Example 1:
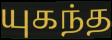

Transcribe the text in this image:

யுகந்த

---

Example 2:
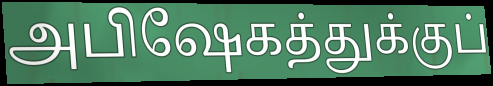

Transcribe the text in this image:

அபிஷேகத்துக்குப்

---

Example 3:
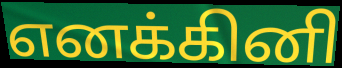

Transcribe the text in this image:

எனக்கினி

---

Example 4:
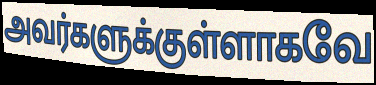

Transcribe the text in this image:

அவர்களுக்குள்ளாகவே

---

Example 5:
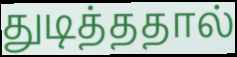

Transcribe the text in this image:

துடித்ததால்